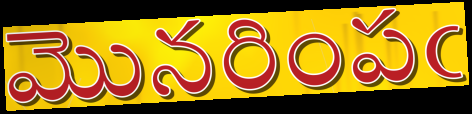
మొనరింపఁ